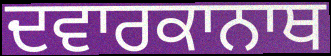
ਦਵਾਰਕਾਨਾਥ